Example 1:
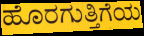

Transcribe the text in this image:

ಹೊರಗುತ್ತಿಗೆಯ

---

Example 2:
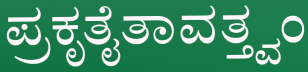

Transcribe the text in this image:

ಪ್ರಕೃತೈತಾವತ್ತ್ವಂ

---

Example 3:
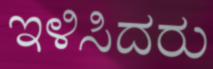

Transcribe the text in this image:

ಇಳಿಸಿದರು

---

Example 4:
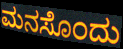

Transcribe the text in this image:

ಮನಸೊಂದು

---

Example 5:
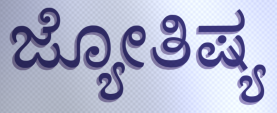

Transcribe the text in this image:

ಜ್ಯೋತಿಷ್ಯ